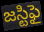
జస్టిఫై